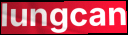
lungcan